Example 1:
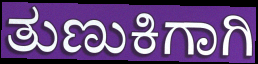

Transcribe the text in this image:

ತುಣುಕಿಗಾಗಿ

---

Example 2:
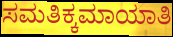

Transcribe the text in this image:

ಸಮತಿಕ್ಕಮಾಯಾತಿ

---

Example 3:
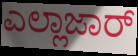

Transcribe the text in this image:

ಎಲ್ಲಾಜಾರ್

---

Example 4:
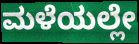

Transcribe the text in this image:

ಮಳೆಯಲ್ಲೇ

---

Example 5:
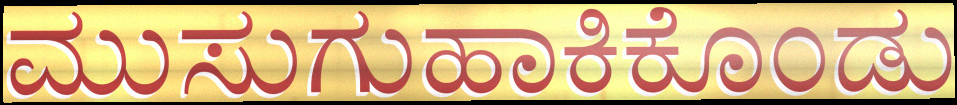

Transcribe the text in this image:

ಮುಸುಗುಹಾಕಿಕೊಂಡು